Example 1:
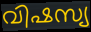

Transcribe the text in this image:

വിഷസ്യ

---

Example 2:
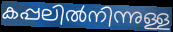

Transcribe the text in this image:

കപ്പലിൽനിന്നുള്ള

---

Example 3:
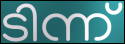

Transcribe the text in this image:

ടിന്ന്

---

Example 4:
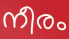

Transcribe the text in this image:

നീരം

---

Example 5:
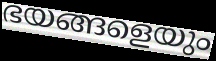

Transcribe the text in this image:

ഭയങ്ങളെയും